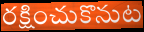
రక్షించుకొనుట